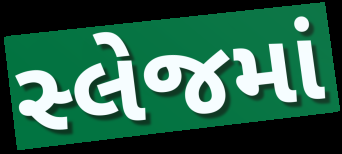
સ્લેજમાં